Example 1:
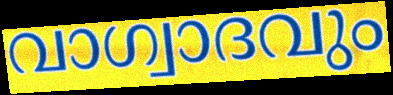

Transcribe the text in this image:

വാഗ്വാദവും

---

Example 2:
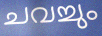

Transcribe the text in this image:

ചവച്ചും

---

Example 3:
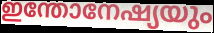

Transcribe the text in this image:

ഇന്തോനേഷ്യയും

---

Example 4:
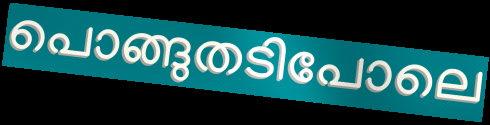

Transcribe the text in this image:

പൊങ്ങുതടിപോലെ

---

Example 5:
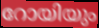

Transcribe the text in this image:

റോയിയും